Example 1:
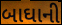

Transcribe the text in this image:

બાઘાની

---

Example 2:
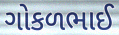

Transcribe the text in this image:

ગોકળભાઈ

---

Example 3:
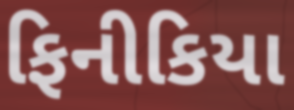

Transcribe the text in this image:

ફિનીકિયા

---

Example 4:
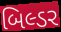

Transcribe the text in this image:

બિલ્ડર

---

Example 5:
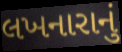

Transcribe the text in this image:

લખનારાનું